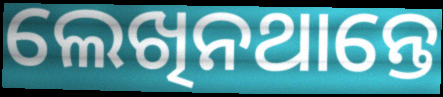
ଲେଖିନଥାନ୍ତେ